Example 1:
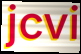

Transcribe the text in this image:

jcvi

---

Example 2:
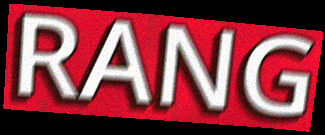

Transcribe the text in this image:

RANG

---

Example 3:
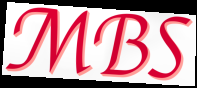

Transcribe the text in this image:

MBS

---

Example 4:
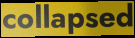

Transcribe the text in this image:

collapsed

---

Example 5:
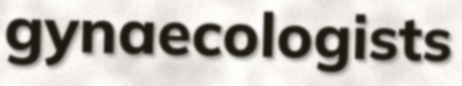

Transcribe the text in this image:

gynaecologists